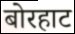
बोरहाट